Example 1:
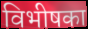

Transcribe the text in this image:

विभीषका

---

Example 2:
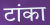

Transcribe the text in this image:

टांका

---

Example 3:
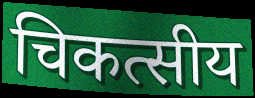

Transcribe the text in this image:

चिकत्सीय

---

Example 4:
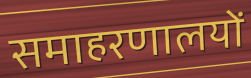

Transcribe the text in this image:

समाहरणालयों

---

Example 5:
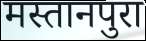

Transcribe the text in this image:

मस्तानपुरा